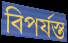
বিপর্যস্ত